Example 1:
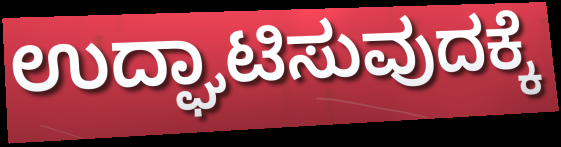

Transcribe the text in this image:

ಉದ್ಘಾಟಿಸುವುದಕ್ಕೆ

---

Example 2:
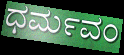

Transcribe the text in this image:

ಧರ್ಮವಂ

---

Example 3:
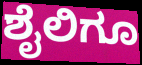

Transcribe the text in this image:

ಶೈಲಿಗೂ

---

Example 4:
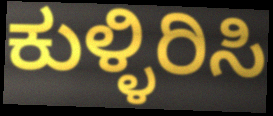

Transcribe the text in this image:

ಕುಳ್ಳಿರಿಸಿ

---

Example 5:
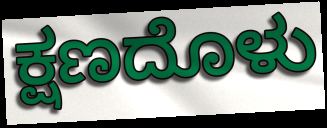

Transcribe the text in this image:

ಕ್ಷಣದೊಳು